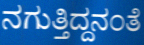
ನಗುತ್ತಿದ್ದನಂತೆ